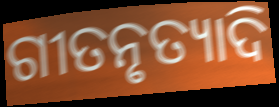
ଗୀତନୃତ୍ୟାଦି